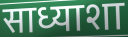
साध्याशा